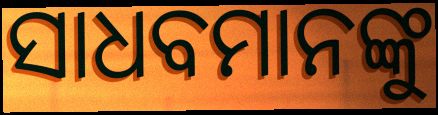
ସାଧବମାନଙ୍କୁ